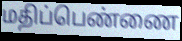
மதிப்பெண்ணை